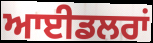
ਆਈਡਲਰਾਂ